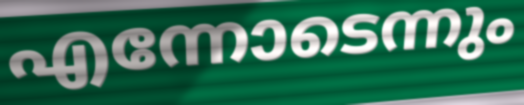
എന്നോടെന്നും